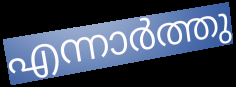
എന്നാർത്തു